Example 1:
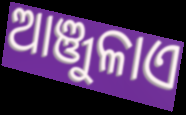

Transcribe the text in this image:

ଆଞ୍ଜୁଳାଏ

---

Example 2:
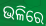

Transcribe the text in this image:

ଭଳିରେ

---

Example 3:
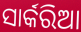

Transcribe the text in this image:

ସାର୍କରିଆ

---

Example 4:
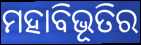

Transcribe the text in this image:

ମହାବିଭୂତିର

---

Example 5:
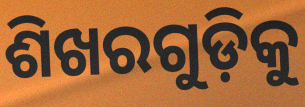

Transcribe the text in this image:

ଶିଖରଗୁଡ଼ିକୁ